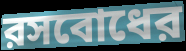
রসবোধের